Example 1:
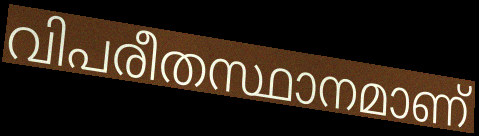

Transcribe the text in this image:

വിപരീതസ്ഥാനമാണ്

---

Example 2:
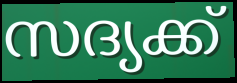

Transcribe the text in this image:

സദ്യക്ക്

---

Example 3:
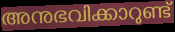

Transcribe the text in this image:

അനുഭവിക്കാറുണ്ട്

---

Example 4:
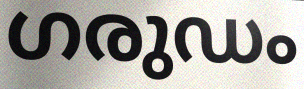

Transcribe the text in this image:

ഗരുഡം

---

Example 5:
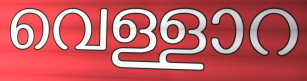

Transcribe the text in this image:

വെള്ളാറ